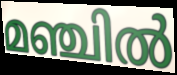
മഞ്ചിൽ